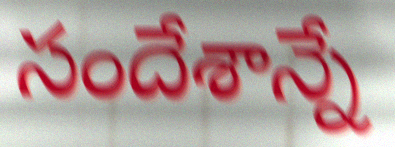
సందేశాన్నే